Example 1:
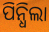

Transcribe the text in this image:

ପିନ୍ଧିଲା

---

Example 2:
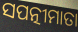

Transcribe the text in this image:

ସପତ୍ନୀମାତା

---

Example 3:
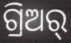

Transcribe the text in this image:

ଗ୍ରିଅର୍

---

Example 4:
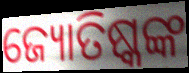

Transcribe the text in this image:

ଜ୍ୟୋତିଷ୍କଙ୍କ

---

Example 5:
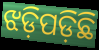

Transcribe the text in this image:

ଝଡ଼ିପଡ଼ିଛି